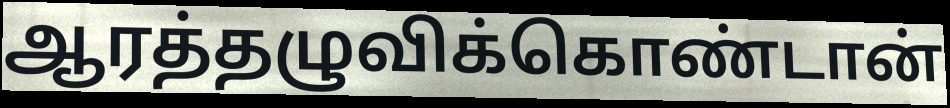
ஆரத்தழுவிக்கொண்டான்